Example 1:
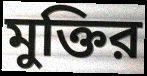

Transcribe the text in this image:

মুক্তির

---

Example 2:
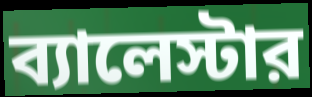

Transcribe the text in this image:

ব্যালেস্টার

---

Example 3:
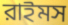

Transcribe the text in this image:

রাইমস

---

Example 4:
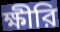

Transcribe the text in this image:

ক্ষীরি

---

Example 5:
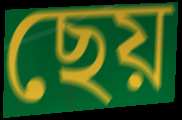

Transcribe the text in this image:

ছেয়